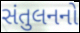
સંતુલનનો